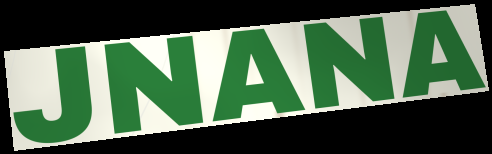
JNANA